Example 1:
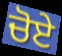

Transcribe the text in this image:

ਚੋਏ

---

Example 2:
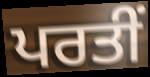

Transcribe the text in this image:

ਪਰਤੀਂ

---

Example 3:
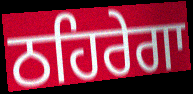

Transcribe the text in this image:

ਠਹਿਰੇਗਾ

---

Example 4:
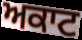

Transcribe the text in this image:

ਅਕਾਟ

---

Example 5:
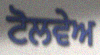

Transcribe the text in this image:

ਟੋਲਵੇਅ